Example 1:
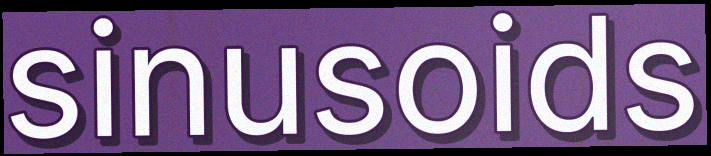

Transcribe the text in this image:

sinusoids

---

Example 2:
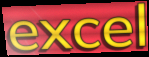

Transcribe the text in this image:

excel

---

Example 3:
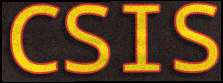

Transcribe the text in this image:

CSIS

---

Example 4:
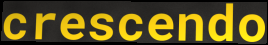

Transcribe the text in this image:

crescendo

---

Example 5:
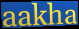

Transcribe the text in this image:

aakha